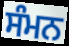
ਸੰਮਨ